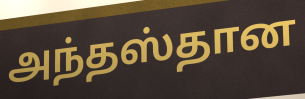
அந்தஸ்தான